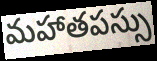
మహాతపస్సు